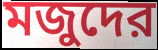
মজুদের